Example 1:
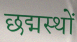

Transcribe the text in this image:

छद्मस्थों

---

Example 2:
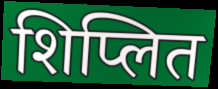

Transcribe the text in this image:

शिप्लित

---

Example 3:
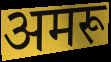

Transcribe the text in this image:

अमरू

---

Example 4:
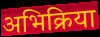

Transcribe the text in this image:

अभिक्रिया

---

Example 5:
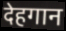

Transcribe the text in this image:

देहगान